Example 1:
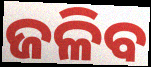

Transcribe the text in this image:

ଜଳିବ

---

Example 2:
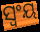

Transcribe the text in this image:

ସ୍ୱଂୟ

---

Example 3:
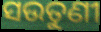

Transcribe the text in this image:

ସଉତୁଣୀ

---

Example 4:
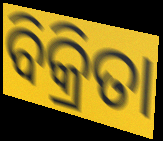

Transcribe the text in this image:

ବିକ୍ରିତା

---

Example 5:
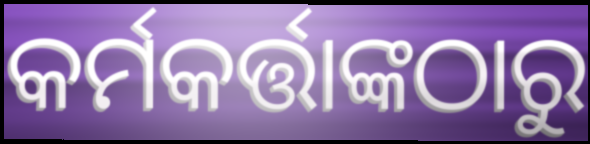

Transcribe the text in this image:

କର୍ମକର୍ତ୍ତାଙ୍କଠାରୁ